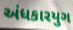
અંધકારયુગ